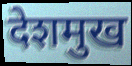
देशमुख